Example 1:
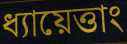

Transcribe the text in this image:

ধ্যায়েত্তাং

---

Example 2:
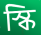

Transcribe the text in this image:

স্কি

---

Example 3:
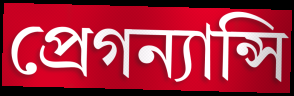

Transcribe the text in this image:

প্রেগন্যান্সি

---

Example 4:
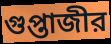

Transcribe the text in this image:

গুপ্তাজীর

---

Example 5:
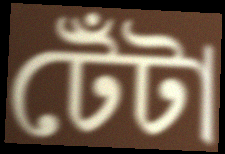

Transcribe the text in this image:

টেঁটা